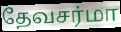
தேவசர்மா